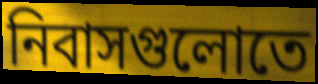
নিবাসগুলোতে